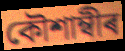
কৌশাম্বীৰ